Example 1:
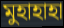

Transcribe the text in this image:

মুহাহাহা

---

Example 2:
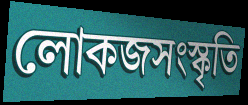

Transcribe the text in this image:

লোকজসংস্কৃতি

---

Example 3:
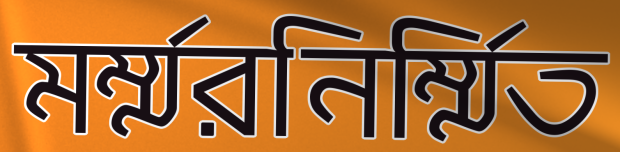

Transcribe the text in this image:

মর্ম্মরনির্ম্মিত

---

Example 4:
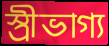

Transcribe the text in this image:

স্ত্রীভাগ্য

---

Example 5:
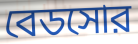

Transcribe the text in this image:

বেডসোর